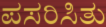
ಪಸರಿಸಿತು